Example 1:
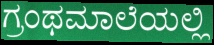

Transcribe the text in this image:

ಗ್ರಂಥಮಾಲೆಯಲ್ಲಿ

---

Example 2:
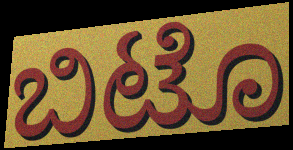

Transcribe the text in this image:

ಬಿಟೊ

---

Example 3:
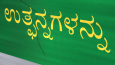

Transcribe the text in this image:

ಉತ್ಫನ್ನಗಳನ್ನು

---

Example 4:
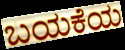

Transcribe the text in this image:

ಬಯಕೆಯ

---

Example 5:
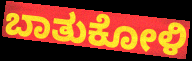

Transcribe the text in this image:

ಬಾತುಕೋಳಿ